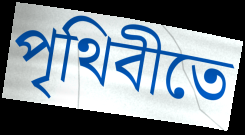
পৃথিবীতে